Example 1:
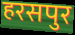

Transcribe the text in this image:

हरसपुर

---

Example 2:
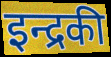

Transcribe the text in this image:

इन्द्रकी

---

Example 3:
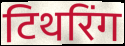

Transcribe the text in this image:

टिथरिंग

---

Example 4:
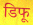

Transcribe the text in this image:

डिफू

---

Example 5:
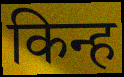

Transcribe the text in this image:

किन्ह